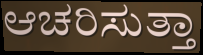
ಆಚರಿಸುತ್ತಾ